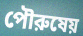
পৌরুষেয়